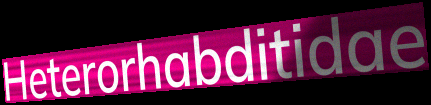
Heterorhabditidae